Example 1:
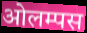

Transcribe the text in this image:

ओलम्पस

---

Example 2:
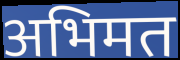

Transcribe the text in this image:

अभिमत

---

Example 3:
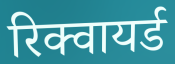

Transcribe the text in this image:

रिक्वायर्ड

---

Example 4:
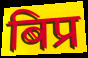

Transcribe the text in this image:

बिप्र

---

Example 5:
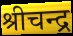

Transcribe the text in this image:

श्रीचन्द्र